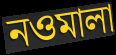
নওমালা